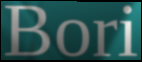
Bori